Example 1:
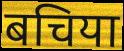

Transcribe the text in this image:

बचिया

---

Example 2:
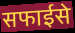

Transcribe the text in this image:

सफाईसे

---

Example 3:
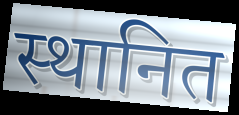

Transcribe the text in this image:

स्थानित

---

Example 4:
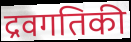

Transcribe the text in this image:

द्रवगतिकी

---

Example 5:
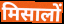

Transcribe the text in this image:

मिसालों